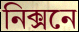
নিক্সনে